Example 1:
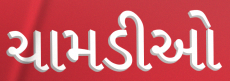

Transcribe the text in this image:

ચામડીઓ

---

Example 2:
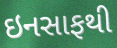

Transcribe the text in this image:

ઇનસાફથી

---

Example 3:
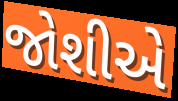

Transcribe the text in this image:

જોશીએ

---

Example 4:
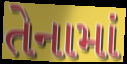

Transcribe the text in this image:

તેનામાં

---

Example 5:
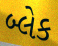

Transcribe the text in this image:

બ્લેક